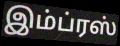
இம்ப்ரஸ்